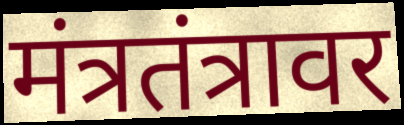
मंत्रतंत्रावर